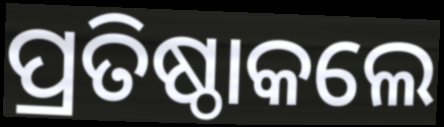
ପ୍ରତିଷ୍ଠାକଲେ